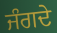
ਜੰਗਦੇ